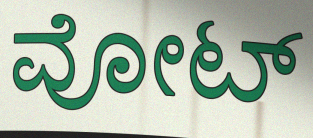
ವೋಟ್